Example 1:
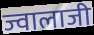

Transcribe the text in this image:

ज्वालाजी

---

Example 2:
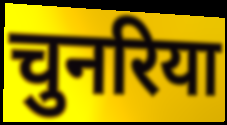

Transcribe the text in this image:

चुनरिया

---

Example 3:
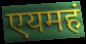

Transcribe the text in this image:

एयमहं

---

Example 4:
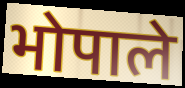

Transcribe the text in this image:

भोपाले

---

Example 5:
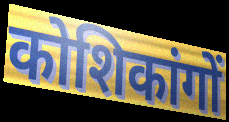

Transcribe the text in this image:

कोशिकांगों